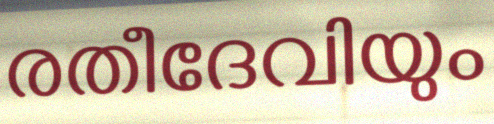
രതീദേവിയും